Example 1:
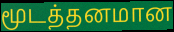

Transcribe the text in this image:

மூடத்தனமான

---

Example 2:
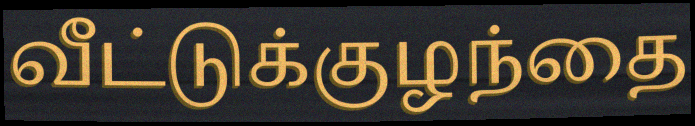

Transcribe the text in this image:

வீட்டுக்குழந்தை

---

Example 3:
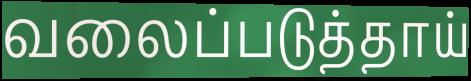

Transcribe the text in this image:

வலைப்படுத்தாய்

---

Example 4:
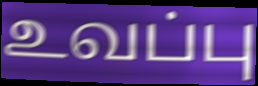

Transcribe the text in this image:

உவப்பு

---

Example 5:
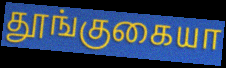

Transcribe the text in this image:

தூங்குகையா